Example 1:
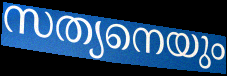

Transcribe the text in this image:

സത്യനെയും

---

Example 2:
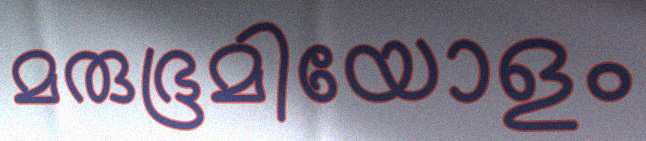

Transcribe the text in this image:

മരുഭൂമിയോളം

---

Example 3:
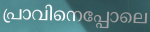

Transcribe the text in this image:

പ്രാവിനെപ്പോലെ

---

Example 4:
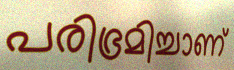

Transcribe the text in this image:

പരിഭ്രമിച്ചാണ്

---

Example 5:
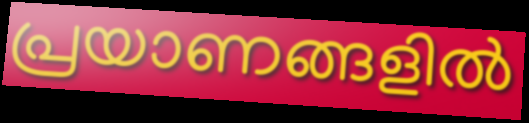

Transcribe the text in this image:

പ്രയാണങ്ങളിൽ